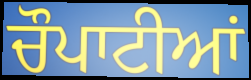
ਚੌਪਾਟੀਆਂ